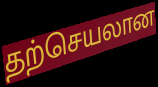
தற்செயலான